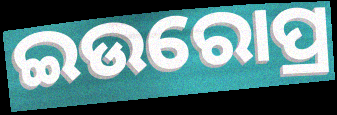
ଇଉରୋପ୍ର